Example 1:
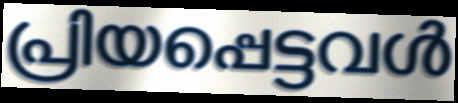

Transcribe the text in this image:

പ്രിയപ്പെട്ടവൾ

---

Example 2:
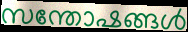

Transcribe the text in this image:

സന്തോഷങ്ങൾ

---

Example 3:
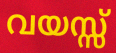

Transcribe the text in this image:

വയസ്സ്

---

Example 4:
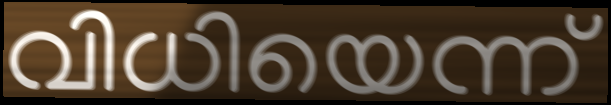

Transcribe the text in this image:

വിധിയെന്ന്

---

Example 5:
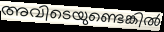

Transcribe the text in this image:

അവിടെയുണ്ടെങ്കിൽ